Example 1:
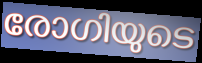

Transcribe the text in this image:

രോഗിയുടെ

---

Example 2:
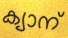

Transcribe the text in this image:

ക്യാന്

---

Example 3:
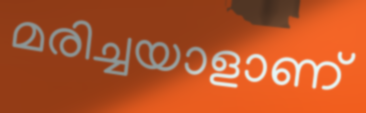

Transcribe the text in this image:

മരിച്ചയാളാണ്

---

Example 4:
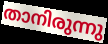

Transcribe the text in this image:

താനിരുന്നു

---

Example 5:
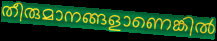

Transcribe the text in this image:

തീരുമാനങ്ങളാണെങ്കിൽ